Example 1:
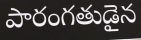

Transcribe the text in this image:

పారంగతుడైన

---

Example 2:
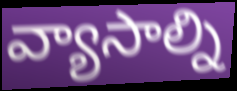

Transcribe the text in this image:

వ్యాసాల్ని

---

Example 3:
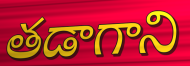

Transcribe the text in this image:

తడాగాని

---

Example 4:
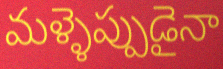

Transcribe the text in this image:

మళ్ళెప్పుడైనా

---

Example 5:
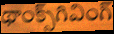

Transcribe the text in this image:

థాంక్స్‌గివింగ్